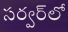
సర్వర్‌లో